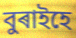
বুৰাইহে